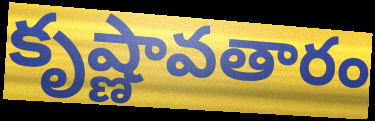
కృష్ణావతారం